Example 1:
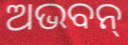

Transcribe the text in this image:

ଅଭବନ୍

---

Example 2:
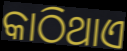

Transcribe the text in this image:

କାଠିଥାଏ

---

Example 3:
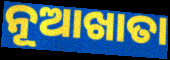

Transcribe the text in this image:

ନୂଆଖାତା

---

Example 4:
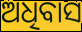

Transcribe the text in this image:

ଅଧିବାସ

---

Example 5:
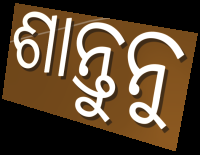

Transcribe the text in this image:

ଶାନ୍ତୁନୁ